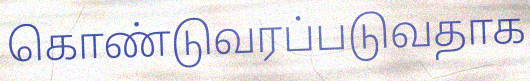
கொண்டுவரப்படுவதாக